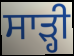
ਸਾੜ੍ਹੀ